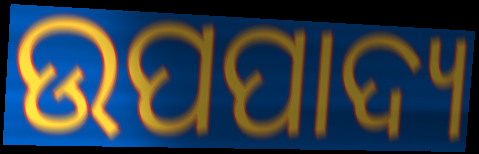
ଉପପାଦ୍ୟ